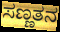
ಸಣ್ಣತನ